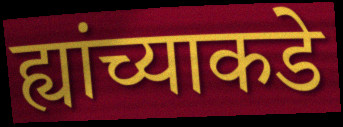
ह्यांच्याकडे